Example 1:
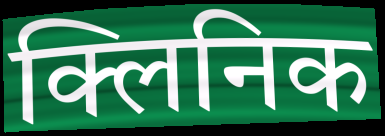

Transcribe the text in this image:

क्लिनिक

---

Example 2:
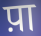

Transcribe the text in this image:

प़ा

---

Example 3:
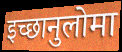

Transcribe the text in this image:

इच्छानुलोमा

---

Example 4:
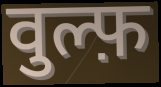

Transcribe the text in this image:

वुल्फ़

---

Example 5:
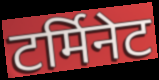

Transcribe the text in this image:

टर्मिनेट